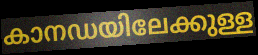
കാനഡയിലേക്കുള്ള